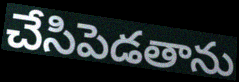
చేసిపెడతాను